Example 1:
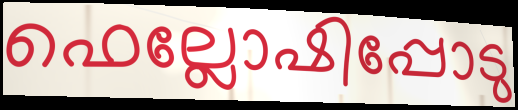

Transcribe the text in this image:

ഫെല്ലോഷിപ്പോടു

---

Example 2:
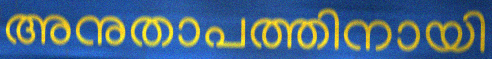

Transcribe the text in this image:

അനുതാപത്തിനായി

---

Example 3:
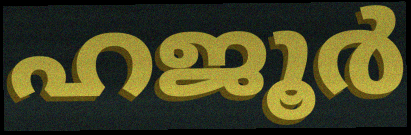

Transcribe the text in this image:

ഹജൂർ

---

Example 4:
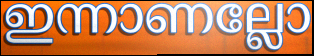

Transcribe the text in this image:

ഇന്നാണല്ലോ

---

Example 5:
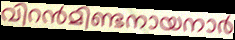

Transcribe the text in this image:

വിറൻമിണ്ടനായനാർ